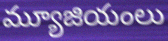
మ్యూజియంలు